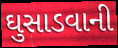
ઘુસાડવાની